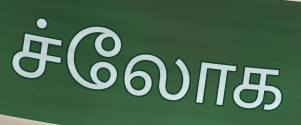
ச்லோக